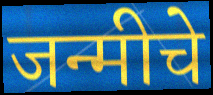
जन्मीचे